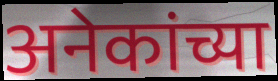
अनेकांच्या